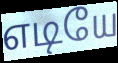
எடியே